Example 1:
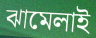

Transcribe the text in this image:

ঝামেলাই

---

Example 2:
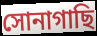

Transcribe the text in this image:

সোনাগাছি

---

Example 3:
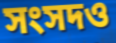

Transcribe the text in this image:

সংসদও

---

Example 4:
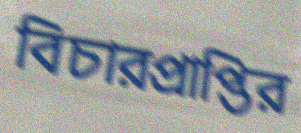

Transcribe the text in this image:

বিচারপ্রাপ্তির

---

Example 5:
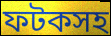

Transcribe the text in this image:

ফটকসহ